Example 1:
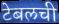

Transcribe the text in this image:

टेबलची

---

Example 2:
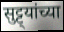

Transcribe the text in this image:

सुट्ट्यांच्या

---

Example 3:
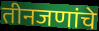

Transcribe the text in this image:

तीनजणांचे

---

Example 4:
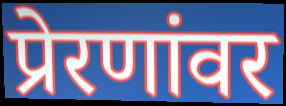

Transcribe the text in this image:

प्रेरणांवर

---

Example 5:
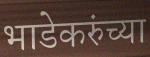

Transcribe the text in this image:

भाडेकरुंच्या